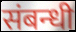
संबन्‍धी